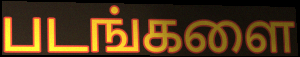
படங்களை